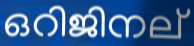
ഒറിജിനല്